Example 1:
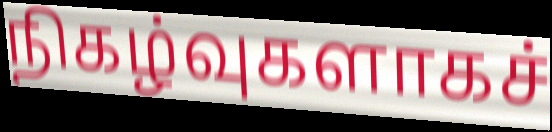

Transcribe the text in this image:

நிகழ்வுகளாகச்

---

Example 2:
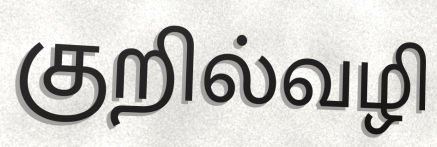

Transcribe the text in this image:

குறில்வழி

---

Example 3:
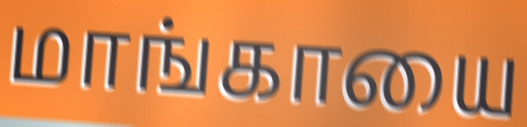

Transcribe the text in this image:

மாங்காயை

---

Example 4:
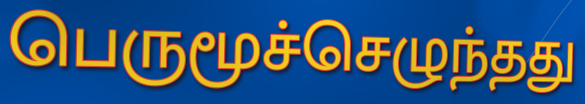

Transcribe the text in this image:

பெருமூச்செழுந்தது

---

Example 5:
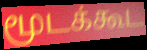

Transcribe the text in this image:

மூடக்கூட